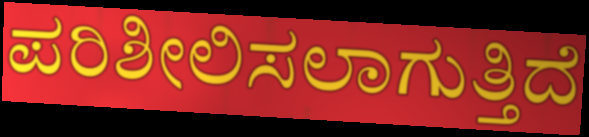
ಪರಿಶೀಲಿಸಲಾಗುತ್ತಿದೆ